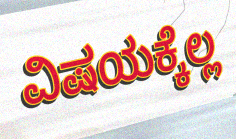
ವಿಷಯಕ್ಕೆಲ್ಲ